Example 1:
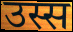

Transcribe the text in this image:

उस्स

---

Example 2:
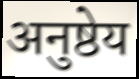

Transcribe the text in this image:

अनुष्ठेय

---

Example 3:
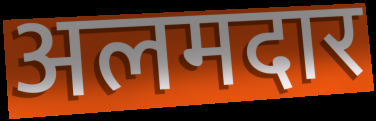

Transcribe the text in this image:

अलमदार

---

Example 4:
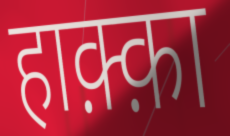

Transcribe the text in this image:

हाक़्क़ा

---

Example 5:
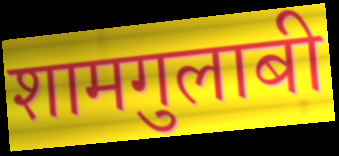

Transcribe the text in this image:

शामगुलाबी